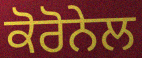
ਕੋਰੋਨੇਲ